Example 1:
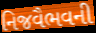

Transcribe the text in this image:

નિજવૈભવની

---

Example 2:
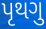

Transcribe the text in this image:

પૃથગુ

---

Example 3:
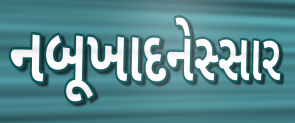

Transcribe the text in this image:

નબૂખાદનેસ્સાર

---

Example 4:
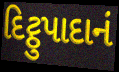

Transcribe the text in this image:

દિટ્ઠુપાદાનં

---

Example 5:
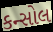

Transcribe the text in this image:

કન્સોલ